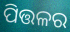
ପିତ୍ତଳର